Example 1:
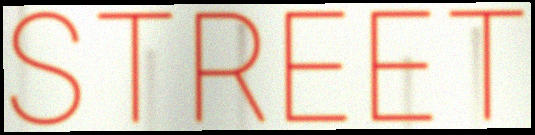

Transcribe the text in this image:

STREET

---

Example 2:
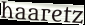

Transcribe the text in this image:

haaretz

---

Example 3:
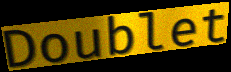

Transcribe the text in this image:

Doublet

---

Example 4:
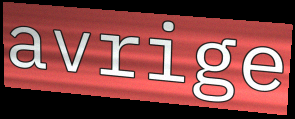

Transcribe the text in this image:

avrige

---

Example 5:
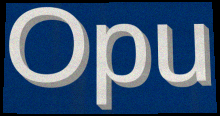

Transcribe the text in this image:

Opu